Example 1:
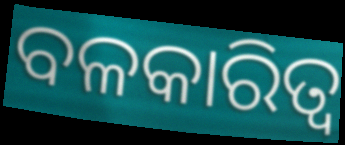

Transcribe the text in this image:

ବଳକାରିତ୍ୱ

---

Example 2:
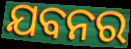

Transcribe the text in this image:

ଯବନର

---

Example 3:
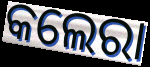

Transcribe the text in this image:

କଲେରା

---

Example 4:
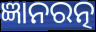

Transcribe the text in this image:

ଜ୍ଞାନରତ୍ନ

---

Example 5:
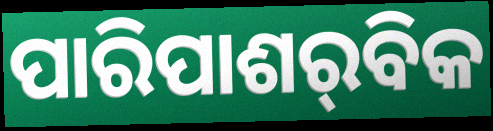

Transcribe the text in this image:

ପାରିପାଶର୍‌ବିକ